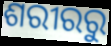
ଶରୀରରୁ